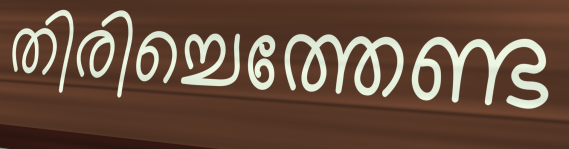
തിരിച്ചെത്തേണ്ട